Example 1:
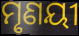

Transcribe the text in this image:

ମୃଣୟୀ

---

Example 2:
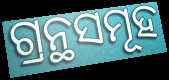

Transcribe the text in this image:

ଗ୍ରନ୍ଥସମୂହ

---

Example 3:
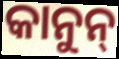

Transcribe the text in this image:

କାନୁନ୍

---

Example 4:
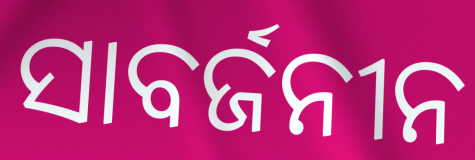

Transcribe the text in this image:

ସାବର୍ଜନୀନ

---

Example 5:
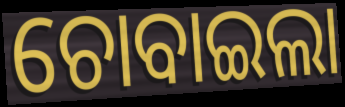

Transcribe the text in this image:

ଚୋବାଇଲା